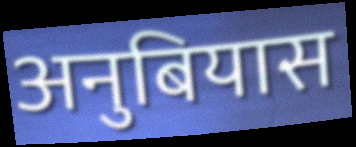
अनुबियास